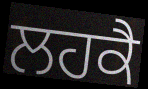
ਲਹਕੈ